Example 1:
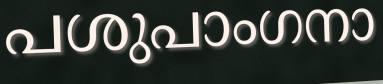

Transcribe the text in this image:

പശുപാംഗനാ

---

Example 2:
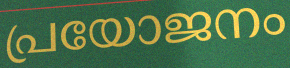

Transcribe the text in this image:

പ്രയോജനം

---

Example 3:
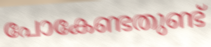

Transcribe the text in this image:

പോകേണ്ടതുണ്ട്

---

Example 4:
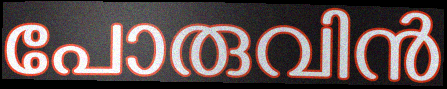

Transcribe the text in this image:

പോരുവിൻ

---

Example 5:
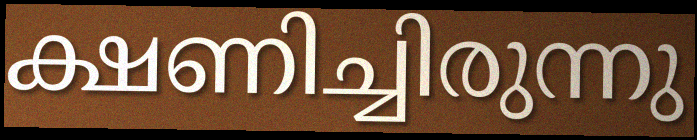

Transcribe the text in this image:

ക്ഷണിച്ചിരുന്നു